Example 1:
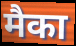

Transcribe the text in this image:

मैका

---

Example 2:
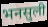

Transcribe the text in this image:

भनसुली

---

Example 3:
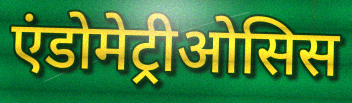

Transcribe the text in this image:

एंडोमेट्रीओसिस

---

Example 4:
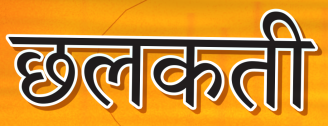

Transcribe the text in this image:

छलकती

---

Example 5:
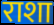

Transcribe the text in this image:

राशा